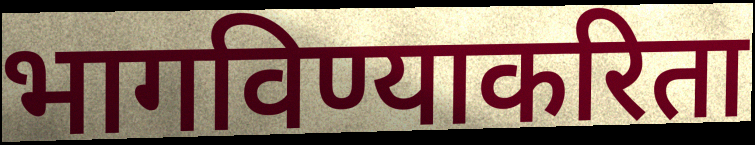
भागविण्याकरिता